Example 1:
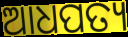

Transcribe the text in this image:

ଆଧପତ୍ୟ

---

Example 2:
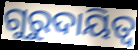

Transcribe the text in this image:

ଗୁରୁଦାୟିତ୍ୱ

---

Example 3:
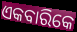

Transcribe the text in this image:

ଏକବାରିକେ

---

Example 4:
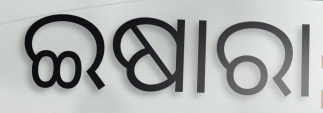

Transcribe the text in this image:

ଇଷାରା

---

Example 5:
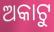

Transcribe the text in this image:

ଅକାଟୁ